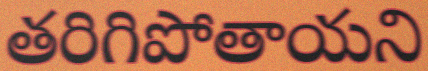
తరిగిపోతాయని